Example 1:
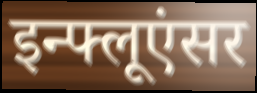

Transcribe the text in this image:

इन्फ्लूएंसर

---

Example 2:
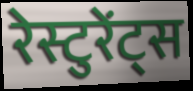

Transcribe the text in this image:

रेस्टुरेंट्स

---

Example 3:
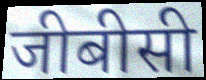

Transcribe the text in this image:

जीबीसी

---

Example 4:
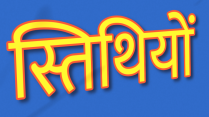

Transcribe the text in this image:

स्तिथियों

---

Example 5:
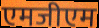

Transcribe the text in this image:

एमजीएम